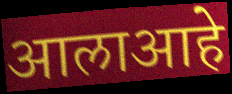
आलाआहे